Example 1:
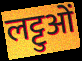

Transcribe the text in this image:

लट्टुओं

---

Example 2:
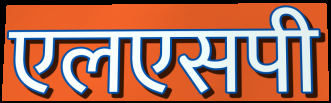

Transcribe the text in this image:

एलएसपी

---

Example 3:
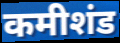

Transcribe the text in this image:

कमीशंड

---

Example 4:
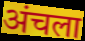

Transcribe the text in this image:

अंचला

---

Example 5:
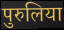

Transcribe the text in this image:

पुरुलिया